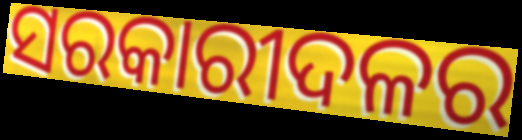
ସରକାରୀଦଳର